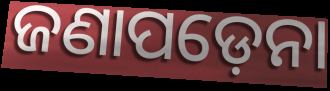
ଜଣାପଡ଼େନା